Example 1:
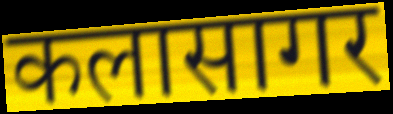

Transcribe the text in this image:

कलासागर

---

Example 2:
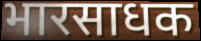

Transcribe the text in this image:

भारसाधक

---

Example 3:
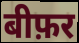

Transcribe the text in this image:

बीफ़र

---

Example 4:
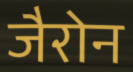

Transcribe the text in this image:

जैरोन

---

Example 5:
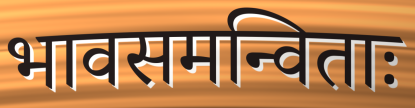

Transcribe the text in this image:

भावसमन्विताः